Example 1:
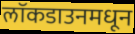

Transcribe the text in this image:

लॉकडाउनमधून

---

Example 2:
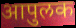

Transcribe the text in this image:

आपुलक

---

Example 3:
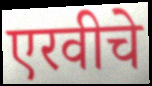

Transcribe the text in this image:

एरवीचे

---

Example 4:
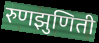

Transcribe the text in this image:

रुणझुणिती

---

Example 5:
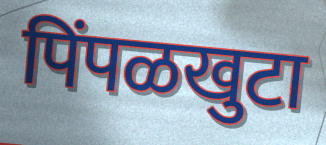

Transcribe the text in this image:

पिंपळखुटा